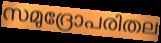
സമുദ്രോപരിതല